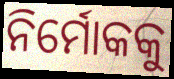
ନିର୍ମୋକକୁ